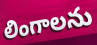
లింగాలను